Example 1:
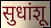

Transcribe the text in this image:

सुधांशू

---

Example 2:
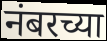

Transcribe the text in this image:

नंबरच्या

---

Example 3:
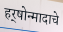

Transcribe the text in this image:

हर्षोन्मादाचे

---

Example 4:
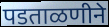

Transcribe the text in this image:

पडताळणीने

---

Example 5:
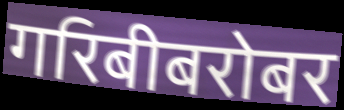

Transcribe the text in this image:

गरिबीबरोबर